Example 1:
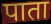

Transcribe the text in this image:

पाता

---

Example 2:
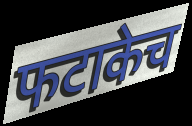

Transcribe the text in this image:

फटाकेच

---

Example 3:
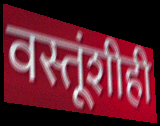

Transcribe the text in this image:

वस्तूंशीही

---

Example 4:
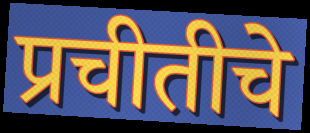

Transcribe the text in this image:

प्रचीतीचे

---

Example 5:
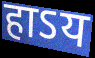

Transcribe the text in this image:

हाऽय